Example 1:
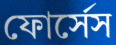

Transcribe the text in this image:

ফোর্সেস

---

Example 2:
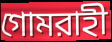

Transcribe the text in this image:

গোমরাহী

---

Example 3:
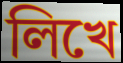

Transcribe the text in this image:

লিখে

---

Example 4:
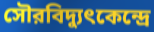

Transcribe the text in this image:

সৌরবিদ্যুৎকেন্দ্রে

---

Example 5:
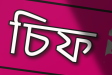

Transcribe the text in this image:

চিফ